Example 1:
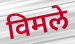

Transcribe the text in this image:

विमले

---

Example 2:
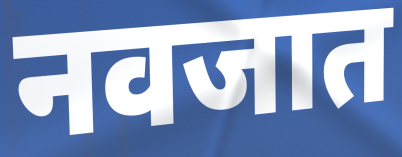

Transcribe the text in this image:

नवजात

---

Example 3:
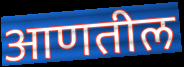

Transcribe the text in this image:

आणतील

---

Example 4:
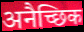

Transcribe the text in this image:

अनैच्छिक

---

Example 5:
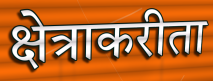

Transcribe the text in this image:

क्षेत्राकरीता